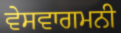
ਵੇਸਵਾਗਮਨੀ